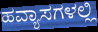
ಹವ್ಯಾಸಗಳಲ್ಲಿ